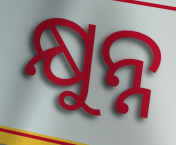
କ୍ଷୁନ୍ନ